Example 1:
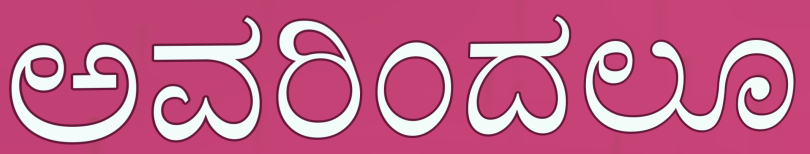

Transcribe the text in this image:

ಅವರಿಂದಲೂ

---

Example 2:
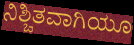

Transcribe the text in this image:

ನಿಶ್ಚಿತವಾಗಿಯೂ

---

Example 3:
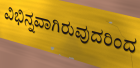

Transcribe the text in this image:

ವಿಭಿನ್ನವಾಗಿರುವುದರಿಂದ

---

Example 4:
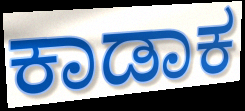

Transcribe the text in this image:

ಕಾಡಾಕ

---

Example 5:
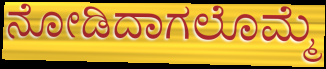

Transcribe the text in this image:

ನೋಡಿದಾಗಲೊಮ್ಮೆ